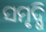
ସମୃଦ୍ଧି